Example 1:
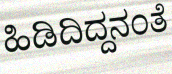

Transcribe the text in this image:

ಹಿಡಿದಿದ್ದನಂತೆ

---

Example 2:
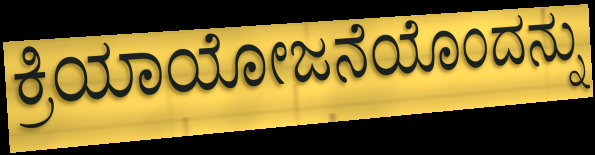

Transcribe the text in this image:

ಕ್ರಿಯಾಯೋಜನೆಯೊಂದನ್ನು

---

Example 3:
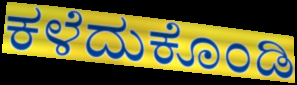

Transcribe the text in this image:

ಕಳೆದುಕೊಂಡಿ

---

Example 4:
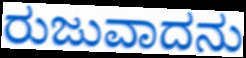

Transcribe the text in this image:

ರುಜುವಾದನು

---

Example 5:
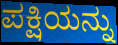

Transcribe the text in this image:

ಪಕ್ಷಿಯನ್ನು